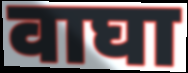
वाघा